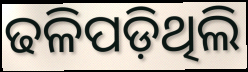
ଢଳିପଡ଼ିଥିଲି